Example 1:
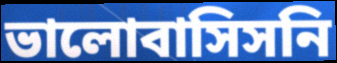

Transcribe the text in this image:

ভালোবাসিসনি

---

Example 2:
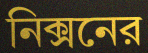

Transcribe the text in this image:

নিক্সনের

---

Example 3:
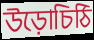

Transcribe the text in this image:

উড়োচিঠি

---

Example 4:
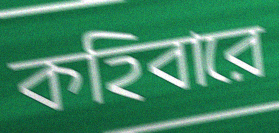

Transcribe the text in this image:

কহিবারে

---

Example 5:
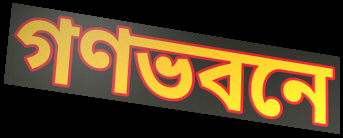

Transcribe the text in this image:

গণভবনে